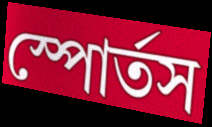
স্পোর্তস